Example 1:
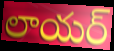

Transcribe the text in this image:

లాయర్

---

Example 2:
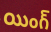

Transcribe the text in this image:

యింగ్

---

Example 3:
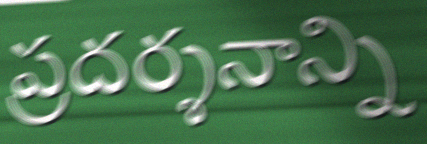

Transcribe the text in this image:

ప్రదర్శనాన్ని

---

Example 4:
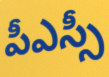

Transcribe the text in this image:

పీఎస్సీ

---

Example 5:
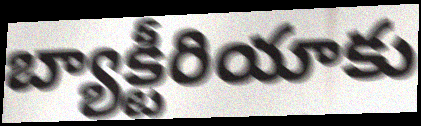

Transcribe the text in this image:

బ్యాక్టీరియాకు